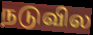
நடுவில